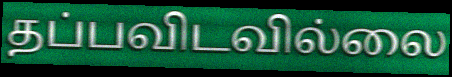
தப்பவிடவில்லை